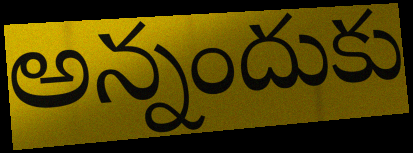
అన్నందుకు